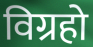
विग्रहो